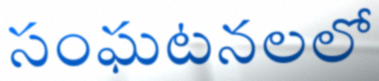
సంఘటనలలో